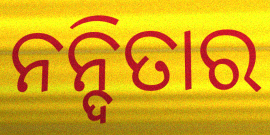
ନନ୍ଦିତାର